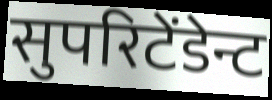
सुपरिटेंडेन्ट